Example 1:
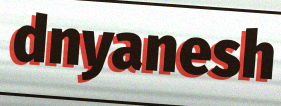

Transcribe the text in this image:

dnyanesh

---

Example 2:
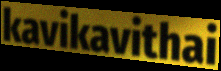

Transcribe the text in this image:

kavikavithai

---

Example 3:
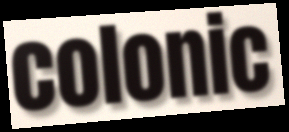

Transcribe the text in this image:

colonic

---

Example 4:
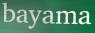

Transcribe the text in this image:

bayama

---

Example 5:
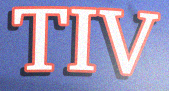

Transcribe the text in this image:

TIV